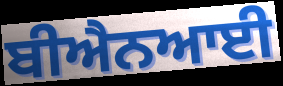
ਬੀਐਨਆਈ